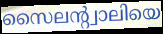
സൈലന്റ്വാലിയെ